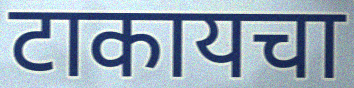
टाकायचा